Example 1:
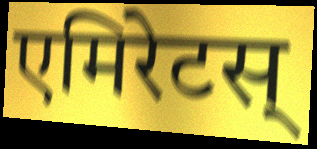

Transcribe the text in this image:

एमिरेटस्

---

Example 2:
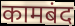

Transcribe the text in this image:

कामबंद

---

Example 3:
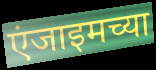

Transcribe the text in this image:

एंजाइमच्या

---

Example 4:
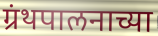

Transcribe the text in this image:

ग्रंथपालनाच्या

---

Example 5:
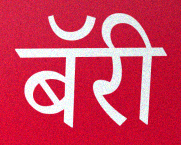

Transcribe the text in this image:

बॅरी